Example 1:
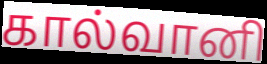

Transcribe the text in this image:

கால்வானி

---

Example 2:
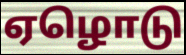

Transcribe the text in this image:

ஏழொடு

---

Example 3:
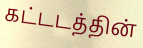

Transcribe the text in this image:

கட்டடத்தின்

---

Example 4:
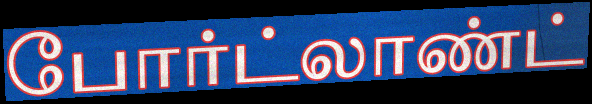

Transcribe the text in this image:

போர்ட்லாண்ட்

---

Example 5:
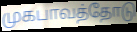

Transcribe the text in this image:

முகபாவத்தோடு